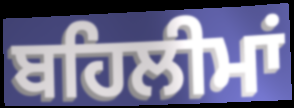
ਬਹਿਲੀਮਾਂ